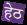
हेठ